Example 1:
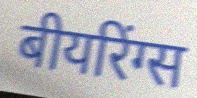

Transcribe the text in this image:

बीयरिंग्स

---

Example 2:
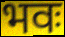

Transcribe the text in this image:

भवः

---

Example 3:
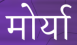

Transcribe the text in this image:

मोर्या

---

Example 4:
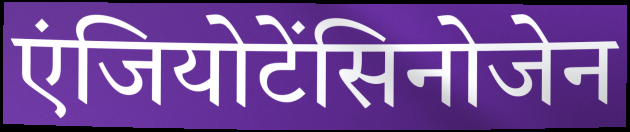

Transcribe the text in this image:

एंजियोटेंसिनोजेन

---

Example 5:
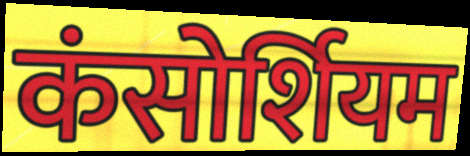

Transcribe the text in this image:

कंसोर्शियम